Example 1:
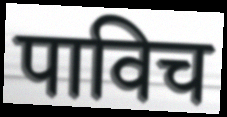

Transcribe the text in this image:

पाविच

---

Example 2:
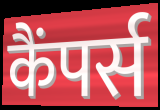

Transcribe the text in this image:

कैंपर्स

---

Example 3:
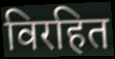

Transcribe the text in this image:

विरहित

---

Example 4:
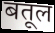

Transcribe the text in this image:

बतूल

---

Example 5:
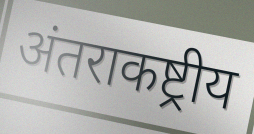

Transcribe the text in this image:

अंतराकष्ट्रीय